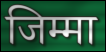
जिम्मा